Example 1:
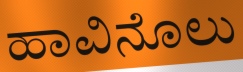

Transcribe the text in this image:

ಹಾವಿನೊಲು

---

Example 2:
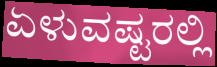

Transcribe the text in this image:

ಏಳುವಷ್ಟರಲ್ಲಿ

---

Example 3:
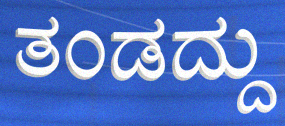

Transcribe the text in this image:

ತಂಡದ್ದು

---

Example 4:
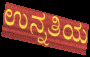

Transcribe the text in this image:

ಉನ್ನತಿಯ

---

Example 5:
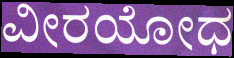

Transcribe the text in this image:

ವೀರಯೋಧ